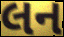
લન